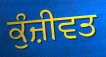
ਕੁੰਜ਼ੀਵਤ